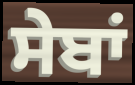
ਸੇਬਾਂ